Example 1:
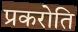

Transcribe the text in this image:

प्रकरोति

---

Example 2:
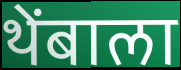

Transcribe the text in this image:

थेंबाला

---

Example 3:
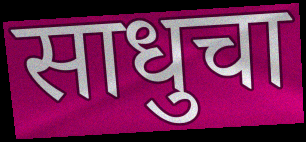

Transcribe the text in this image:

साधुचा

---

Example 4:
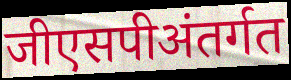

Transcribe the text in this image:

जीएसपीअंतर्गत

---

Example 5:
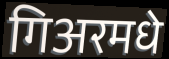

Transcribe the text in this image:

गिअरमधे